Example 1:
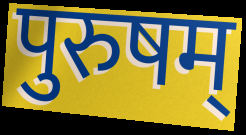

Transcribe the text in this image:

पुरुषम्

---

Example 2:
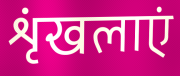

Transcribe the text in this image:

शृंखलाएं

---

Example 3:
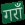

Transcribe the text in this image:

गराँ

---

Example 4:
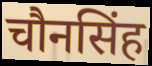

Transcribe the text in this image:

चौनसिंह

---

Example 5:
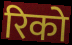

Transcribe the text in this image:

रिको